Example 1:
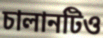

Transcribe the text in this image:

চালানটিও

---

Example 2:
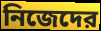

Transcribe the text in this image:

নিজেদের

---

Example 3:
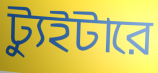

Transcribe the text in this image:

ট্যুইটারে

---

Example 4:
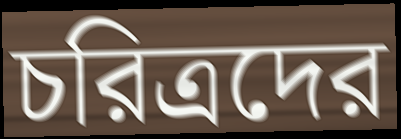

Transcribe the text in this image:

চরিত্রদের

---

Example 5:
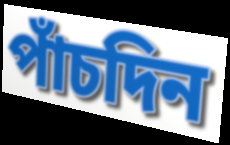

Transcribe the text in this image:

পাঁচদিন